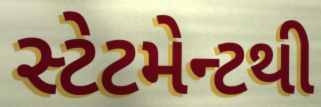
સ્ટેટમેન્ટથી